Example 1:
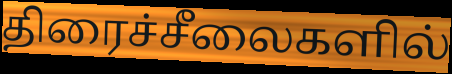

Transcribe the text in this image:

திரைச்சீலைகளில்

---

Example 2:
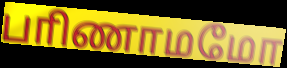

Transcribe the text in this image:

பரிணாமமோ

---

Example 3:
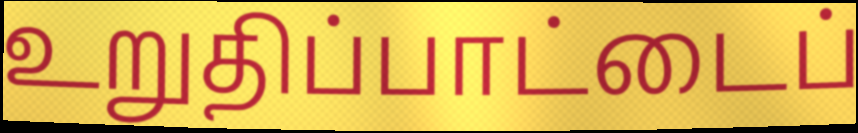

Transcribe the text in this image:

உறுதிப்பாட்டைப்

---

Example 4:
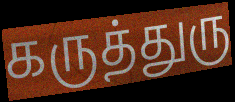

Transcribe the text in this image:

கருத்துரு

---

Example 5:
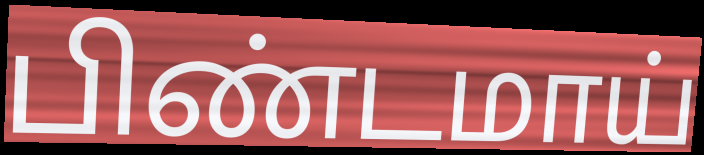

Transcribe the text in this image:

பிண்டமாய்